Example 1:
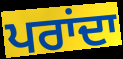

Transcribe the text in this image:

ਪਰਾਂਦਾ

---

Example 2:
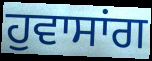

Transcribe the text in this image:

ਹੁਵਾਸਾਂਗ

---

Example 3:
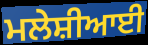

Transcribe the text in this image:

ਮਲੇਸ਼ੀਆਈ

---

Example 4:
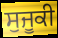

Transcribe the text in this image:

ਸੁਜੂਕੀ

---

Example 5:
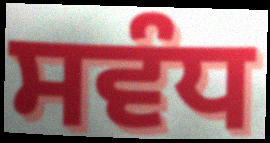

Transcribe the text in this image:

ਸਵੰਧ